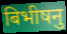
बिभीषनु